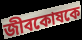
জীবকোষকে